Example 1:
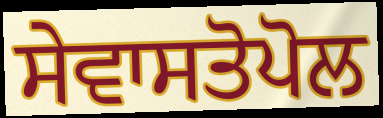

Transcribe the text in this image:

ਸੇਵਾਸਤੋਪੋਲ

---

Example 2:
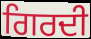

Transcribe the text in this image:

ਗਿਰਦੀ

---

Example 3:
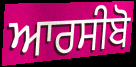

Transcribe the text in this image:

ਆਰਸੀਬੋ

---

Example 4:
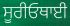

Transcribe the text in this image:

ਸੂਰੀਓਥਾਈ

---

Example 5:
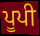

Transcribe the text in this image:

ਪੂਪੀ